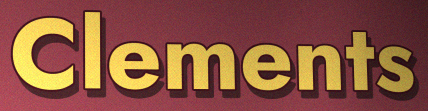
Clements